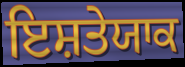
ਇਸ਼ਤੇਯਾਕ